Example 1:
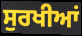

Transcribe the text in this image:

ਸੁਰਖੀਆਂ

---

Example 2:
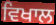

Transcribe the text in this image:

ਵਿਖਾਲ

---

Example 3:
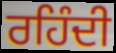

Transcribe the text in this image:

ਰਹਿੰਦੀ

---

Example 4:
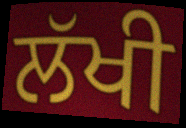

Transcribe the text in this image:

ਲੱਖੀ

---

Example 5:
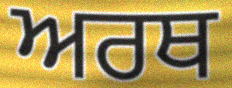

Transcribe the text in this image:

ਅਰਥ